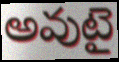
అవుటై